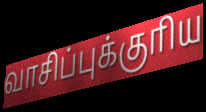
வாசிப்புக்குரிய